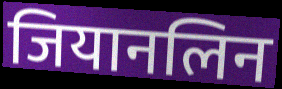
जियानलिन